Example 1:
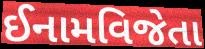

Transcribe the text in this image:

ઈનામવિજેતા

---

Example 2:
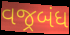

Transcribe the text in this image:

વજ્રબંધ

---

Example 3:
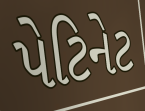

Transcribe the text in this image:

પેટિનેટ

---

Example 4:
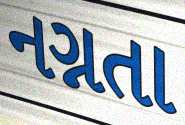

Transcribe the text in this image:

નગ્નતા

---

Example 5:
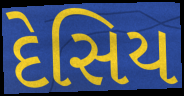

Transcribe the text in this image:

દેસિય